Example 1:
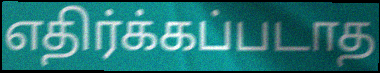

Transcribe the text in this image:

எதிர்க்கப்படாத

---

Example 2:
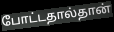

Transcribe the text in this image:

போட்டதால்தான்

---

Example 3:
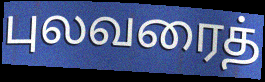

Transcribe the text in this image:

புலவரைத்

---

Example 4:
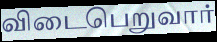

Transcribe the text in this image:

விடைபெறுவார்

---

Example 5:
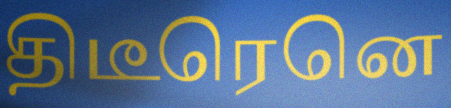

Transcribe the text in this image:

திடீரெனெ